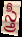
స్త్రీ